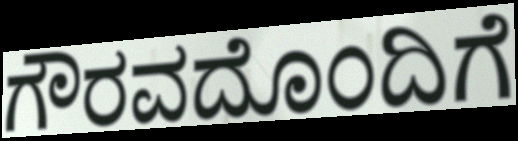
ಗೌರವದೊಂದಿಗೆ